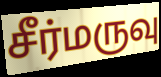
சீர்மருவு